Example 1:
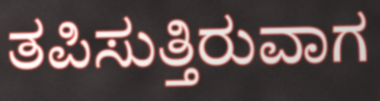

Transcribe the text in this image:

ತಪಿಸುತ್ತಿರುವಾಗ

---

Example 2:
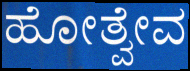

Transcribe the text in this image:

ಹೋತ್ವೇವ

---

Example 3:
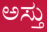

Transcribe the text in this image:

ಅಸ್ತು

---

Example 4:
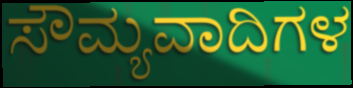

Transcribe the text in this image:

ಸೌಮ್ಯವಾದಿಗಳ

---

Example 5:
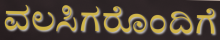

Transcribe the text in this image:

ವಲಸಿಗರೊಂದಿಗೆ